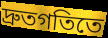
দ্রুতগতিতে